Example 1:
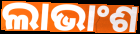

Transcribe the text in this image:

ଲାଭାଂଶ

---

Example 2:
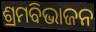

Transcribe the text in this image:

ଶ୍ରମବିଭାଜନ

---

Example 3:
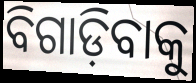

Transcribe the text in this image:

ବିଗାଡ଼ିବାକୁ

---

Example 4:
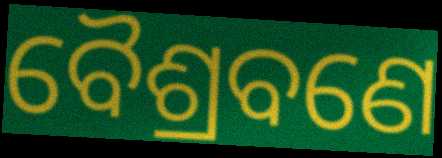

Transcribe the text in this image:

ବୈଶ୍ରବଣେ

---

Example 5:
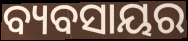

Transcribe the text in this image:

ବ୍ୟବସାୟର